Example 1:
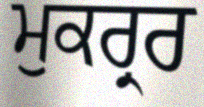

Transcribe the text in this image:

ਮੁਕਰ੍ਰਰ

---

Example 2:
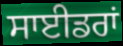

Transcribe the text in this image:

ਸਾਈਡਰਾਂ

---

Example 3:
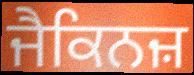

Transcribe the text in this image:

ਜੈਕਿਨਜ਼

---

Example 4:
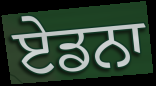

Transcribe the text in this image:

ਏਡਨਾ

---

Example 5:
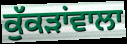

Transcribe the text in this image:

ਕੁੱਕੜਾਂਵਾਲਾ